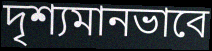
দৃশ্যমানভাবে